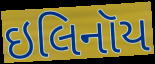
ઇલિનૉય